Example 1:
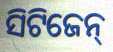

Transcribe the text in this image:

ସିଟିଜେନ୍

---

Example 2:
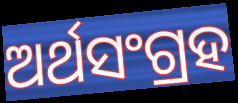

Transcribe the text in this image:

ଅର୍ଥସଂଗ୍ରହ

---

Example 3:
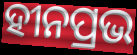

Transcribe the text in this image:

ହୀନପ୍ରଭ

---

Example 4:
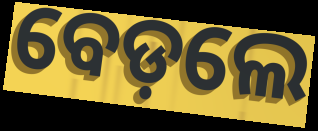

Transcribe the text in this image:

ବେଡ଼ଲେ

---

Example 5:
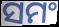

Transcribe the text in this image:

ସମଂ